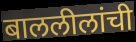
बाललीलांची